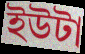
ইউটা